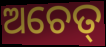
ଅଚେତ୍